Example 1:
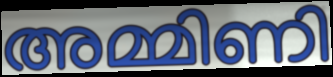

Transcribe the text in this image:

അമ്മിണി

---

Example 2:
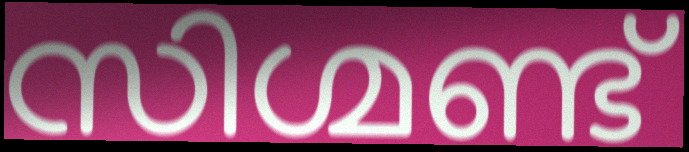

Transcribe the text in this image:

സിഗ്മണ്ട്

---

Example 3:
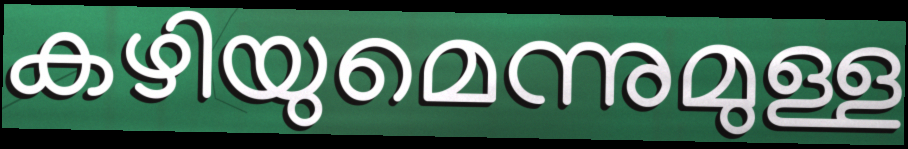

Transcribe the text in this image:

കഴിയുമെന്നുമുള്ള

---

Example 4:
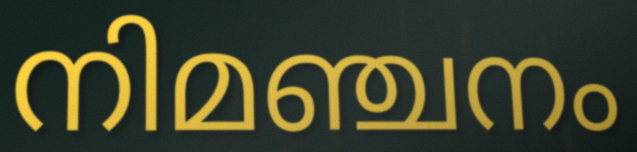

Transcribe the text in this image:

നിമഞ്ചനം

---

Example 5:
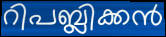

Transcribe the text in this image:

റിപബ്ലിക്കൻ